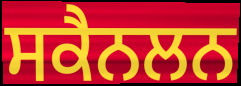
ਸਕੈਨਲਨ